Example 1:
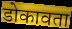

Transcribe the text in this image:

डोकावता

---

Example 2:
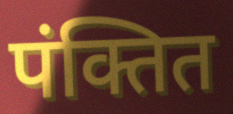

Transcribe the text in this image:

पंक्तित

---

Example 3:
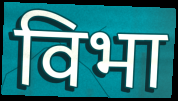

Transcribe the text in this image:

विभा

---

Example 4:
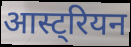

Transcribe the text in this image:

आस्ट्रियन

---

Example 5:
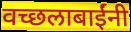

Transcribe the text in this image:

वच्छलाबाईंनी